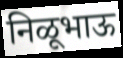
निळूभाऊ